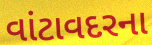
વાંટાવદરના